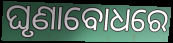
ଘୃଣାବୋଧରେ